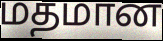
மதமான